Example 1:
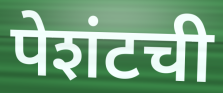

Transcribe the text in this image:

पेशंटची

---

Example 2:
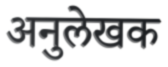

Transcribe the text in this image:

अनुलेखक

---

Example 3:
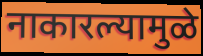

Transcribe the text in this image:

नाकारल्यामुळे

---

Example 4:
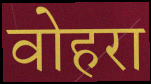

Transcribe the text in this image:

वोहरा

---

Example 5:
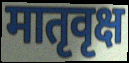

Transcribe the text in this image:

मातृवृक्ष